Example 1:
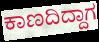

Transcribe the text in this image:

ಕಾಣದಿದ್ದಾಗ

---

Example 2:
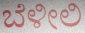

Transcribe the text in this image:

ಬೆಳೀಲಿ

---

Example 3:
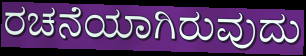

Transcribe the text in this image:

ರಚನೆಯಾಗಿರುವುದು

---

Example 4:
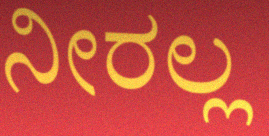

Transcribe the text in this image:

ನೀರಲ್ಲ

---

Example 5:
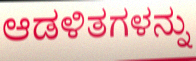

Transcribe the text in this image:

ಆಡಳಿತಗಳನ್ನು